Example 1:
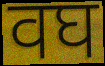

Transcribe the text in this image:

वघ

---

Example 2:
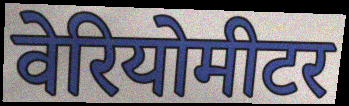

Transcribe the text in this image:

वेरियोमीटर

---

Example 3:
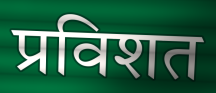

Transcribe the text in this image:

प्रविशत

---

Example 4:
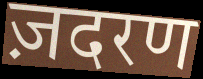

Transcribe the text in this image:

ज़दरण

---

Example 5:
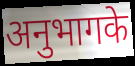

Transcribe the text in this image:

अनुभागके